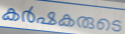
കർഷകരുടെ